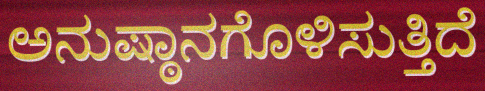
ಅನುಷ್ಠಾನಗೊಳಿಸುತ್ತಿದೆ